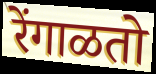
रेंगाळतो